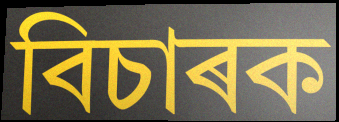
বিচাৰক